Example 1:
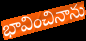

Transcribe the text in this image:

భావించినాను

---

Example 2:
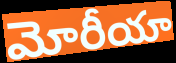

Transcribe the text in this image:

మోరీయా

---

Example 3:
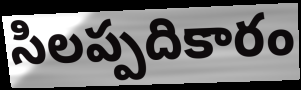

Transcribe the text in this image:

సిలప్పదికారం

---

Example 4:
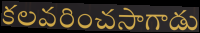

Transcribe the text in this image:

కలవరించసాగాడు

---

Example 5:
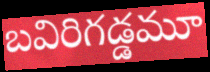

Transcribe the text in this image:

బవిరిగడ్డమూ